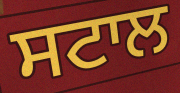
ਸਟਾਲ